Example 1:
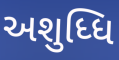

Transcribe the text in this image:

અશુધ્ધિ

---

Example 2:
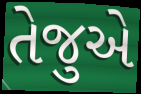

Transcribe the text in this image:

તેજુએ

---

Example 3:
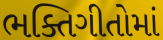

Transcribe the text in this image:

ભક્તિગીતોમાં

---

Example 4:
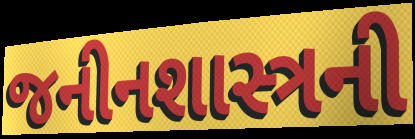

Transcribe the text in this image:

જનીનશાસ્ત્રની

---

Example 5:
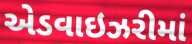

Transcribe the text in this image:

એડવાઇઝરીમાં